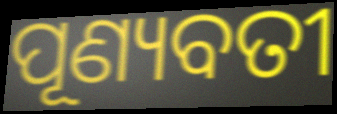
ପୂଣ୍ୟବତୀ